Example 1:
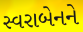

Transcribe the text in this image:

સ્વરાબેનને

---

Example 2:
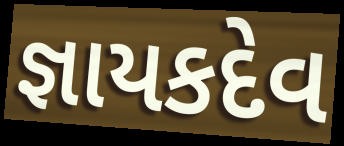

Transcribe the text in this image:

જ્ઞાયકદેવ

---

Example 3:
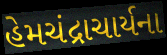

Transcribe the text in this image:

હેમચંદ્રાચાર્યના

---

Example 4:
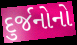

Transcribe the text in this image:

દુર્જનોનો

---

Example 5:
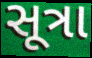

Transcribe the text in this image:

સૂત્રા